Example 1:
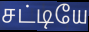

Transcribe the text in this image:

சட்டியே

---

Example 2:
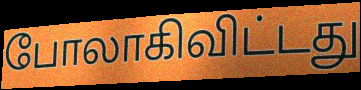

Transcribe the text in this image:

போலாகிவிட்டது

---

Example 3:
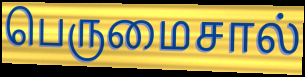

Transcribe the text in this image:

பெருமைசால்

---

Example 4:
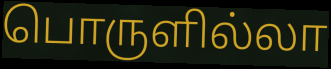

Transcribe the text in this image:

பொருளில்லா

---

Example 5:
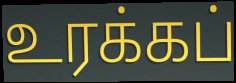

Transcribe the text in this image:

உரக்கப்